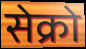
सेक्रो